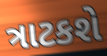
ત્રાટકશે